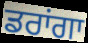
ਡਰਾਂਗਾ